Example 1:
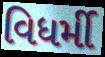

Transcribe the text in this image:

વિધર્મી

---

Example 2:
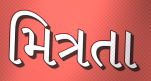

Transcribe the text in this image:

મિત્રતા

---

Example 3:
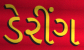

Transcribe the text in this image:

ડેરીંગ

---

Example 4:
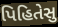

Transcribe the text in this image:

પિહિતેસુ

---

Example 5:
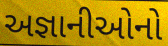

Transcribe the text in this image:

અજ્ઞાનીઓનો